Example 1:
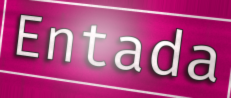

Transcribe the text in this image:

Entada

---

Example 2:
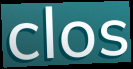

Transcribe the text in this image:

clos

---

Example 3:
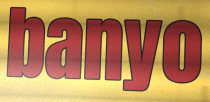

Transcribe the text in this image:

banyo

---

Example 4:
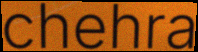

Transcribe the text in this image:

chehra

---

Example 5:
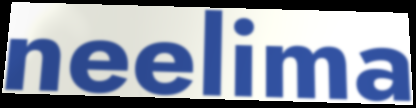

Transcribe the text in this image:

neelima